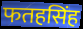
फतहसिंह